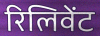
रिलिवेंट